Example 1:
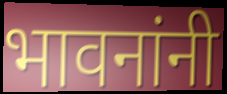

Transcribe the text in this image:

भावनांनी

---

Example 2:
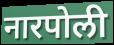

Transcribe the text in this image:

नारपोली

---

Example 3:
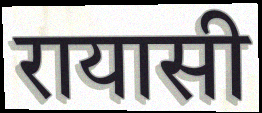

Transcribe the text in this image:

रायासी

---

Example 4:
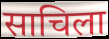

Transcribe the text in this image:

साचिला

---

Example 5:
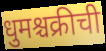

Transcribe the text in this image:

धुमश्चक्रीची